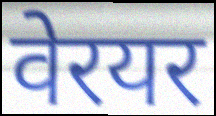
वेरयर